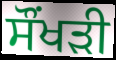
ਸੌਂਖੜੀ